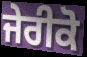
ਜੇਰੀਕੋ